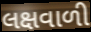
લક્ષવાળી